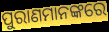
ପୁରାଣମାନଙ୍କରେ